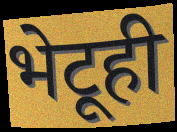
भेटूही